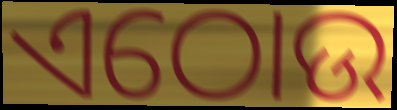
ଏଠୋଉ